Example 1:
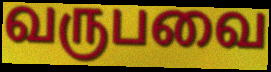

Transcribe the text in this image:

வருபவை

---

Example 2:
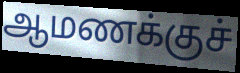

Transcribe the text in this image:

ஆமணக்குச்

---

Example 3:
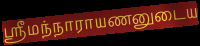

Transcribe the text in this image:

ஸ்ரீமந்நாராயணனுடைய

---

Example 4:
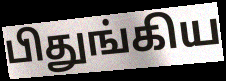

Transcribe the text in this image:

பிதுங்கிய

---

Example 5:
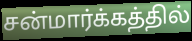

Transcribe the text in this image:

சன்மார்க்கத்தில்